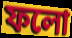
ফলো